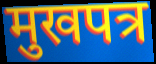
मुखपत्र